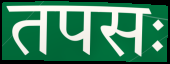
तपसः